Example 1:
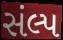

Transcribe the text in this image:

સંલ્પ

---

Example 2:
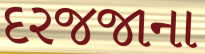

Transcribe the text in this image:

દરજજાના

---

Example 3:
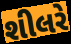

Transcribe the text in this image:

શીલરે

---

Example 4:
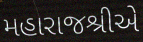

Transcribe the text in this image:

મહારાજશ્રીએ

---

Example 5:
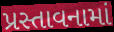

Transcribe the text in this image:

પ્રસ્તાવનામાં